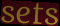
sets